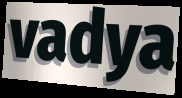
vadya